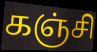
கஞ்சி